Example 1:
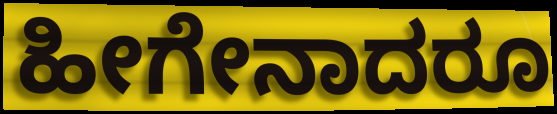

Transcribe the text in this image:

ಹೀಗೇನಾದರೂ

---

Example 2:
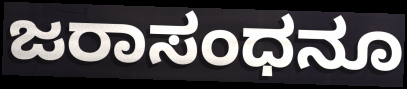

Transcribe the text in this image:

ಜರಾಸಂಧನೂ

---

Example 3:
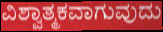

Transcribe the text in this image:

ವಿಶ್ವಾತ್ಮಕವಾಗುವುದು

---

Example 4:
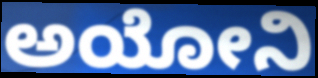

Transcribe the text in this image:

ಅಯೋನಿ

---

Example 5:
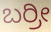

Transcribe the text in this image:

ಬರ್ರೀ